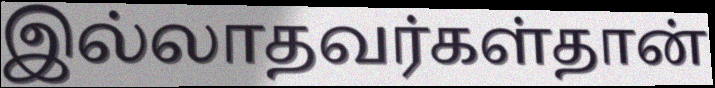
இல்லாதவர்கள்தான்